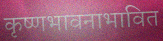
कृष्णभावनाभावित